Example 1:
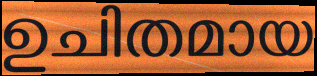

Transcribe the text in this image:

ഉചിതമായ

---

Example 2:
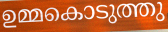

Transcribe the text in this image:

ഉമ്മകൊടുത്തു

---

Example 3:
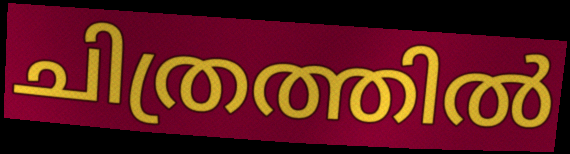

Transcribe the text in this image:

ചിത്രത്തിൽ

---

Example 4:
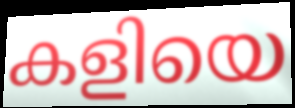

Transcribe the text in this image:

കളിയെ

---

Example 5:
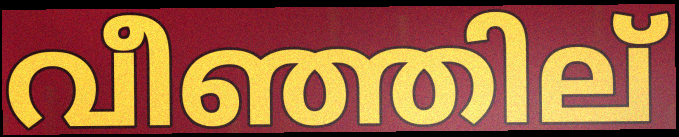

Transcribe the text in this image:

വീഞ്ഞില്